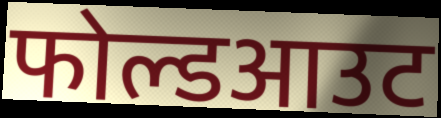
फोल्डआउट